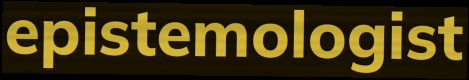
epistemologist